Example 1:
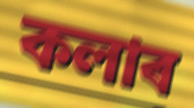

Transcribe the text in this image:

কলাৰ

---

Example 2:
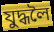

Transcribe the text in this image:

যুদ্ধলৈ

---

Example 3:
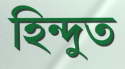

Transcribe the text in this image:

হিন্দুত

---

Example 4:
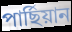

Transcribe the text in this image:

পাৰ্ছিয়ান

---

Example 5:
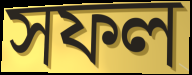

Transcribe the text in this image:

সফল